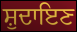
ਸ਼ੁਦਾਇਣ